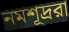
নমশূদ্ররা